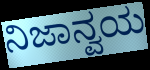
ನಿಜಾನ್ವಯ